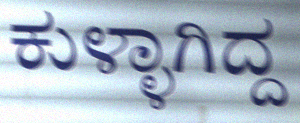
ಕುಳ್ಳಾಗಿದ್ದ